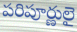
పరిపూర్ణులై